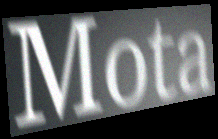
Mota